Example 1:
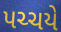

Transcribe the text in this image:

પચ્ચયે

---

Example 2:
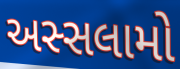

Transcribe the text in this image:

અસ્સલામો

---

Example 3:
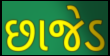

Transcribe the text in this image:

છાજેડ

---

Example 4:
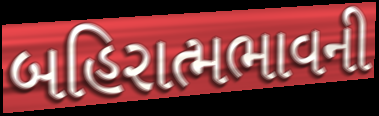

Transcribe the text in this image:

બહિરાત્મભાવની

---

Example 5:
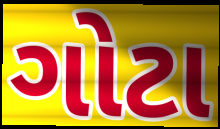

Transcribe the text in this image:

ગોટા